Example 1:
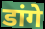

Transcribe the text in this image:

डांगे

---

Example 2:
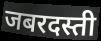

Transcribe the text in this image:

जबरदस्ती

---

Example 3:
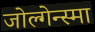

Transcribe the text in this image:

जोल्गेन्स्मा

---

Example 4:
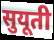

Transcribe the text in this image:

सुयूती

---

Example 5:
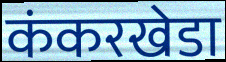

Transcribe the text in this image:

कंकरखेडा